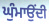
ਘੁੰਮਾਉਂਦੀ